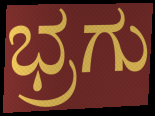
ಭ್ರಗು